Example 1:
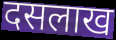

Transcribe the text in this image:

दसलाख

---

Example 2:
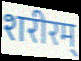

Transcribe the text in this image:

शरीरम्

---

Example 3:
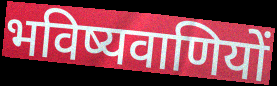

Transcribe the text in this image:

भविष्यवाणियों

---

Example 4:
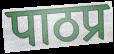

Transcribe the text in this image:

पाठप्र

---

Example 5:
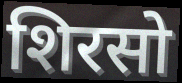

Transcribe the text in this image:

शिरसो